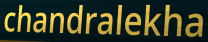
chandralekha